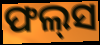
ଫଲ୍‌ସ